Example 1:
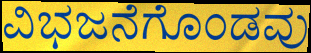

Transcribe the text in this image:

ವಿಭಜನೆಗೊಂಡವು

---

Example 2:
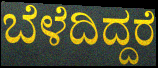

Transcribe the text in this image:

ಬೆಳೆದಿದ್ದರೆ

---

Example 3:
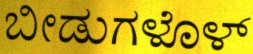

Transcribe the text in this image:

ಬೀಡುಗಳೊಳ್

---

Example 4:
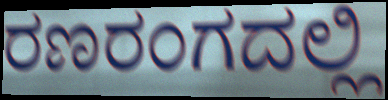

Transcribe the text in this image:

ರಣರಂಗದಲ್ಲಿ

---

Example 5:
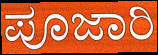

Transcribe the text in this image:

ಪೂಜಾರಿ